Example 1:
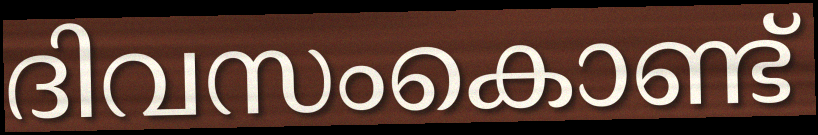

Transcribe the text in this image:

ദിവസംകൊണ്ട്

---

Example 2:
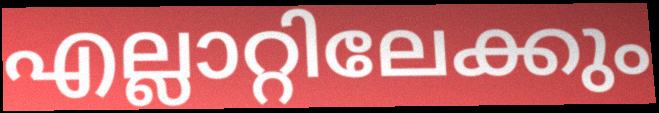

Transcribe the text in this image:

എല്ലാറ്റിലേക്കും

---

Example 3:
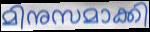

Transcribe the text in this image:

മിനുസമാക്കി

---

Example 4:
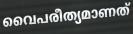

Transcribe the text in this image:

വൈപരീത്യമാണത്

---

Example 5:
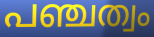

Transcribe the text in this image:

പഞ്ചത്വം